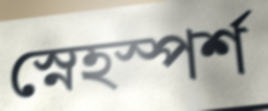
স্নেহস্পর্শ